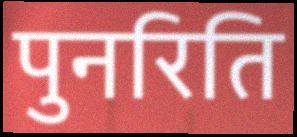
पुनरिति